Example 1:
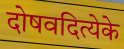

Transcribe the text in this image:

दोषवदित्येके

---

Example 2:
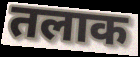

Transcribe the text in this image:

तलाक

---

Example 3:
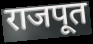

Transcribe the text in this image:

राजपूत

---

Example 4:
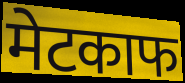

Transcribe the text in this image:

मेटकाफ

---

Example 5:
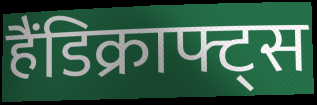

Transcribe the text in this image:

हैंडिक्राफ्ट्स